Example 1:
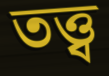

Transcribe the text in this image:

তত্ত্ব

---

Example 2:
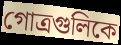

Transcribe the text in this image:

গোত্রগুলিকে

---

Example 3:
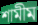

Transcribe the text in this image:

শামীম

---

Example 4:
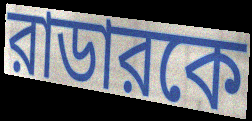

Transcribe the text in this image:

রাডারকে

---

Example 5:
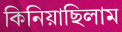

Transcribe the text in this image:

কিনিয়াছিলাম